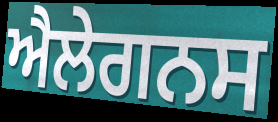
ਐਲੇਗਨਸ